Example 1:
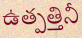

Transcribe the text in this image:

ఉత్పత్తినీ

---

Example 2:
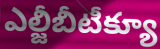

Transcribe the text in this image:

ఎల్జీబీటీక్యూ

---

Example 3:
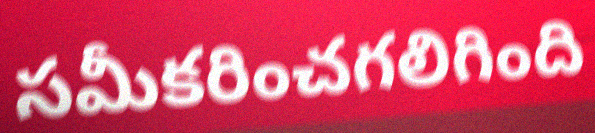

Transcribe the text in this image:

సమీకరించగలిగింది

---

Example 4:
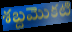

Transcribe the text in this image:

శబ్దమొకటి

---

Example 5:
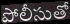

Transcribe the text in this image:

పోలీసుతో